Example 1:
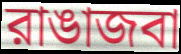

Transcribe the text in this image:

রাঙাজবা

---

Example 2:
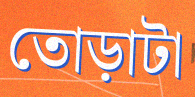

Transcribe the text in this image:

তোড়াটা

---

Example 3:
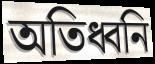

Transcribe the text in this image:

অতিধ্বনি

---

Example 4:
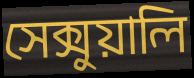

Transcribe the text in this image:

সেক্সুয়ালি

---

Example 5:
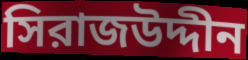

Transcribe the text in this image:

সিরাজউদ্দীন